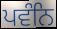
ਪਵੰਨਿ